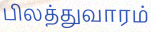
பிலத்துவாரம்